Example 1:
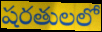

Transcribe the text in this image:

షరతులలో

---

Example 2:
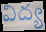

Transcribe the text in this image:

విద్య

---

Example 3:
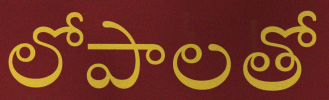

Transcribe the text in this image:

లోపాలతో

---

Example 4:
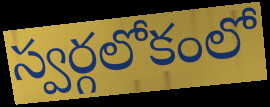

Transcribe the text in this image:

స్వర్గలోకంలో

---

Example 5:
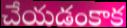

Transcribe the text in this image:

చేయడంకాక